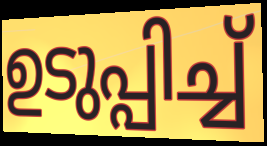
ഉടുപ്പിച്ച്